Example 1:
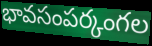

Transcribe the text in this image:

భావసంపర్కంగల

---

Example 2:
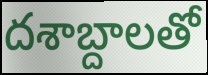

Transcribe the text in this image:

దశాబ్దాలతో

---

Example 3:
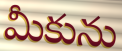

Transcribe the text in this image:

మీకును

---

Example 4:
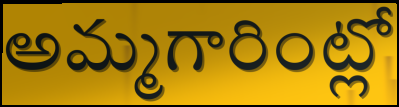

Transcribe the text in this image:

అమ్మగారింట్లో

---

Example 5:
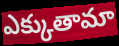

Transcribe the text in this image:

ఎక్కుతామా